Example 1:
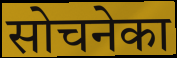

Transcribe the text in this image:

सोचनेका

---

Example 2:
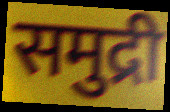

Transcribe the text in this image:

समुद्री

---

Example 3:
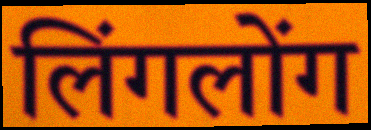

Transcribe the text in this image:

लिंगलोंग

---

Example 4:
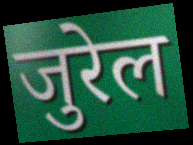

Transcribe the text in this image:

जुरेल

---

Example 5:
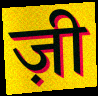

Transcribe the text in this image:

ज़ी